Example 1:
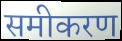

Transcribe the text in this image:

समीकरण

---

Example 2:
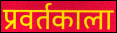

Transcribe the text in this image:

प्रवर्तकाला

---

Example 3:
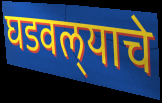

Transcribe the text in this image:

घडवल्याचे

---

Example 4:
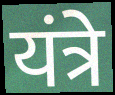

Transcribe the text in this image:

यंत्रे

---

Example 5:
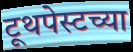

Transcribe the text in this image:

टूथपेस्टच्या